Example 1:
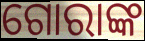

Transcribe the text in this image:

ଗୋରାଙ୍କ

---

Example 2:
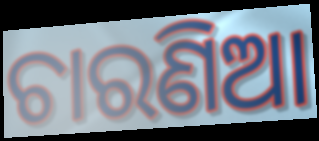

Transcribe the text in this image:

ଚାରଣିଆ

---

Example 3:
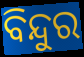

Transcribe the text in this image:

ବିନ୍ଦୁର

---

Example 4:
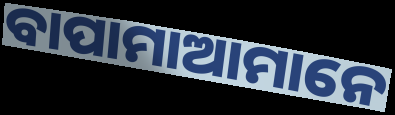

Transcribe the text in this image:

ବାପାମାଆମାନେ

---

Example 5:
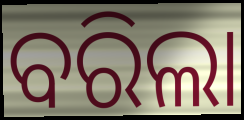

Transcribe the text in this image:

ବରିଲା